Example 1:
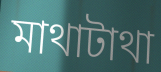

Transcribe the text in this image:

মাথাটাথা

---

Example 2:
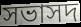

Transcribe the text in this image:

সভাসদ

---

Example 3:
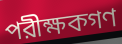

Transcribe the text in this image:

পরীক্ষকগণ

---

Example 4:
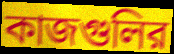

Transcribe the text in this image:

কাজগুলির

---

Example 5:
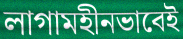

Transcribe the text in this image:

লাগামহীনভাবেই